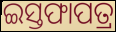
ଇସ୍ତଫାପତ୍ର